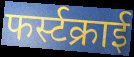
फर्स्टक्राई